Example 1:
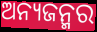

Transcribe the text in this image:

ଅନ୍ୟଜନ୍ମର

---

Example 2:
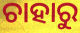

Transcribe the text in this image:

ଚାହାରୁ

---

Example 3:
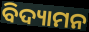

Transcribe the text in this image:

ବିଦ୍ୟାମନ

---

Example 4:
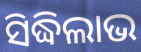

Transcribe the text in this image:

ସିଦ୍ଧିଲାଭ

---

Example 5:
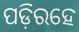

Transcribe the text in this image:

ପଡ଼ିରହେ